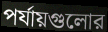
পর্যায়গুলোর